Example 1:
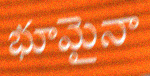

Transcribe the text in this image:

భూమైనా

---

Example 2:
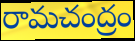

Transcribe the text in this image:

రామచంద్రం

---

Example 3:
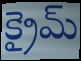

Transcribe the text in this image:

క్రైమ్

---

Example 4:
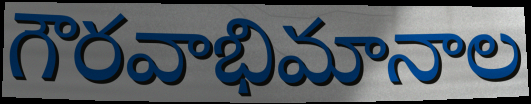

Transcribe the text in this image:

గౌరవాభిమానాల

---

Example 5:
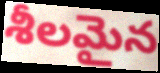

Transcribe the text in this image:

శీలమైన